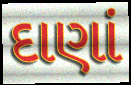
દાણાં